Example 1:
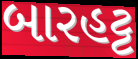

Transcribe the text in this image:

બારહટ્ટ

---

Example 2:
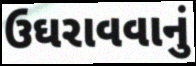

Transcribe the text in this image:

ઉઘરાવવાનું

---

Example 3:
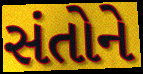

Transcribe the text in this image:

સંતોને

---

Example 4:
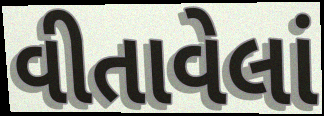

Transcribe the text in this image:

વીતાવેલાં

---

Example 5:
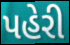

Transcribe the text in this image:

પહેરી